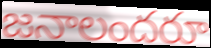
జనాలందరూ